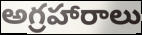
అగ్రహారాలు